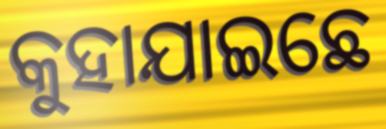
କୁହାଯାଇଛେ